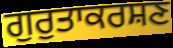
ਗੁਰੁਤਾਕਰਸ਼ਣ